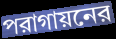
পরাগায়নের